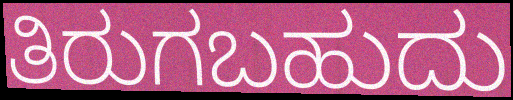
ತಿರುಗಬಹುದು